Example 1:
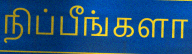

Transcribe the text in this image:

நிப்பீங்களா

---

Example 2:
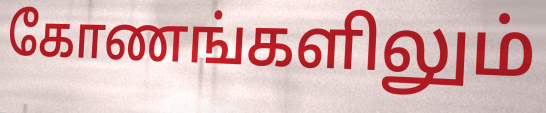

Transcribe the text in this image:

கோணங்களிலும்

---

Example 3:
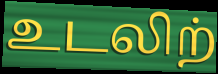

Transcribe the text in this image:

உடலிற்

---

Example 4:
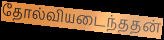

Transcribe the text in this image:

தோல்வியடைந்ததன்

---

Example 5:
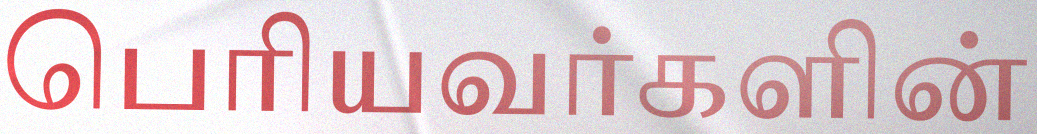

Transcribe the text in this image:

பெரியவர்களின்